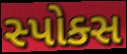
સ્પોક્સ